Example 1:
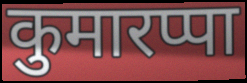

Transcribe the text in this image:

कुमारप्पा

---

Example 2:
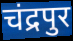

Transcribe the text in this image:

चंद्रपुर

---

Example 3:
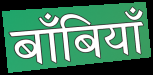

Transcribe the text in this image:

बाँबियाँ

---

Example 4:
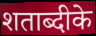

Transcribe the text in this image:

शताब्दीके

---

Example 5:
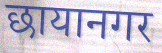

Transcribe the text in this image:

छायानगर